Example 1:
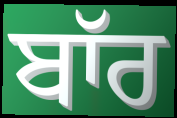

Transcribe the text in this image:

ਬਾੱਰ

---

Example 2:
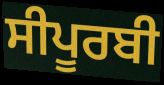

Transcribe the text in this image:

ਸੀਪੂਰਬੀ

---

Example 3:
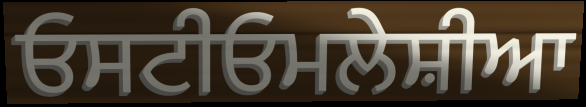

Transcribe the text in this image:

ਓਸਟੀਓਮਲੇਸ਼ੀਆ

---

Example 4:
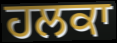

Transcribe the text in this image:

ਹਲਕਾ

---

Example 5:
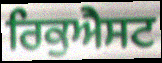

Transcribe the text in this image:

ਰਿਕੁਐਸਟ